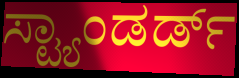
ಸ್ಟ್ಯಾಂಡರ್ಡ್